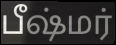
பீஷ்மர்